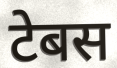
टेबस